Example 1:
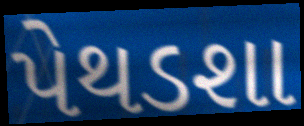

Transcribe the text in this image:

પેથડશા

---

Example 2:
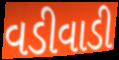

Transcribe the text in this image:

વડીવાડી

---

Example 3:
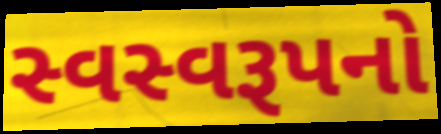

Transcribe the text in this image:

સ્વસ્વરૂપનો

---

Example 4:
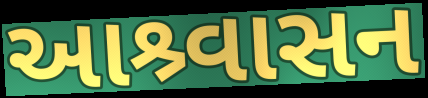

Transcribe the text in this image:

આશ્ર્વાસન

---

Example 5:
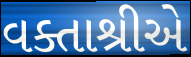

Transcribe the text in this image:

વક્તાશ્રીએ